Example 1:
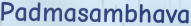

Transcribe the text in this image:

Padmasambhava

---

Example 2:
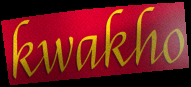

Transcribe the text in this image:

kwakho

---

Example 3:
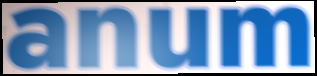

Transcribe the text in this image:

anum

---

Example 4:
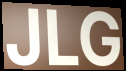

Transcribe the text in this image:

JLG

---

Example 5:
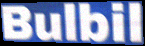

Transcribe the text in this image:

Bulbil